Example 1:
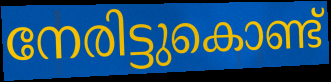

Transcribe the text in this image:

നേരിട്ടുകൊണ്ട്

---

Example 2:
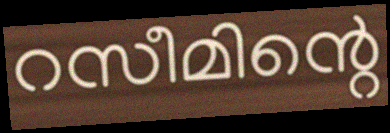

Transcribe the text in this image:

റസീമിന്റെ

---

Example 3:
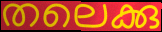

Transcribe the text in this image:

തലെക്കു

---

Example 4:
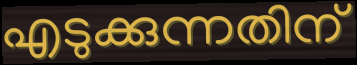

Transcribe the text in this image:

എടുക്കുന്നതിന്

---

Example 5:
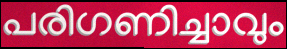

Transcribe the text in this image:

പരിഗണിച്ചാവും